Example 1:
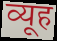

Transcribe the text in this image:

व्यूह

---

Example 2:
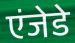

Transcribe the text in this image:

एंजेडे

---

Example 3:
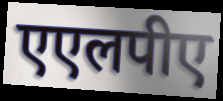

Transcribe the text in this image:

एएलपीए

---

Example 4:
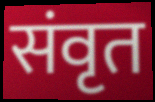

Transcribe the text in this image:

संवृत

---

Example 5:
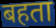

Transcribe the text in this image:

बहता